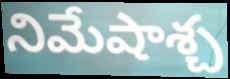
నిమేషాశ్చ